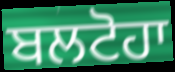
ਬਲਟੋਹਾ